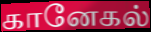
கானேகல்